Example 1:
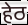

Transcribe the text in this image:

हेठ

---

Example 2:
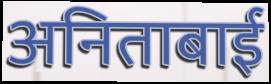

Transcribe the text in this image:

अनिताबाई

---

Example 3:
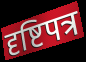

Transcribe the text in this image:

दृष्टिपत्र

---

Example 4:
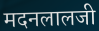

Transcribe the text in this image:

मदनलालजी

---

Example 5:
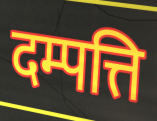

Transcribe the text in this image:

दम्पत्ति